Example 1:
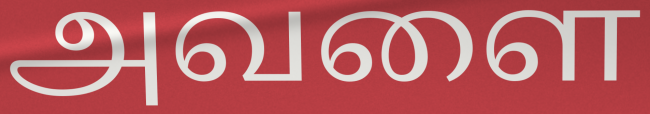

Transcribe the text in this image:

அவளை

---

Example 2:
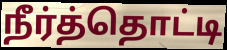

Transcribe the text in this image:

நீர்த்தொட்டி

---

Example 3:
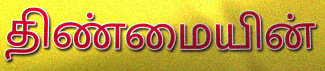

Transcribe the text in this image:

திண்மையின்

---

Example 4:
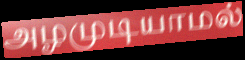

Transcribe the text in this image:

அழமுடியாமல்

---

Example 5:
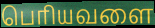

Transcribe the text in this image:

பெரியவளை